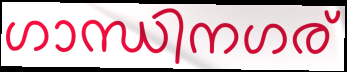
ഗാന്ധിനഗര്